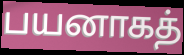
பயனாகத்